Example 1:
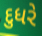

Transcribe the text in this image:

દુધરે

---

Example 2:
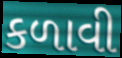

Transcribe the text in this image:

કળાવી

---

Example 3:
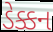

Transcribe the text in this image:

ડેક્કન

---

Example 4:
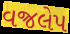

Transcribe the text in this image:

વજ્રલેપ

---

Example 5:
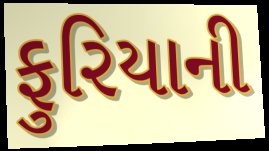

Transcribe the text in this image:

ફુરિયાની